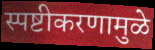
स्पष्टीकरणामुळे